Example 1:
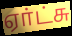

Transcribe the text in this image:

ஏர்ட்சு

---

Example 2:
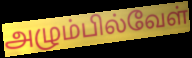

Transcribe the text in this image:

அழும்பில்வேள்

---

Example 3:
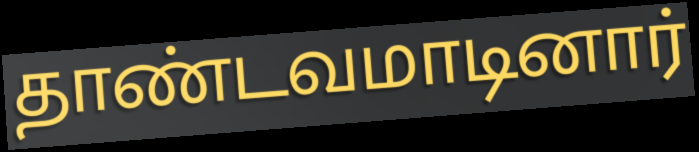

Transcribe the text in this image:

தாண்டவமாடினார்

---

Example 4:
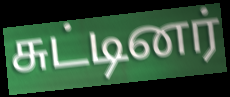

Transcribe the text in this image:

சுட்டினர்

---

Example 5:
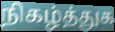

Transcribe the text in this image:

நிகழ்த்துக